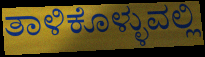
ತಾಳಿಕೊಳ್ಳುವಲ್ಲಿ